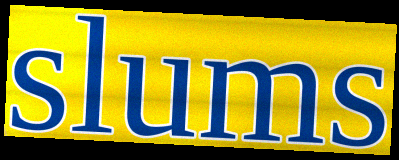
slums